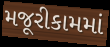
મજૂરીકામમાં